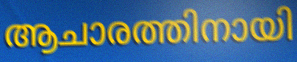
ആചാരത്തിനായി